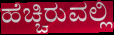
ಹೆಚ್ಚಿರುವಲ್ಲಿ